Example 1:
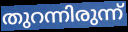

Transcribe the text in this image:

തുറന്നിരുന്ന്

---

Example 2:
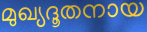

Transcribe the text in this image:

മുഖ്യദൂതനായ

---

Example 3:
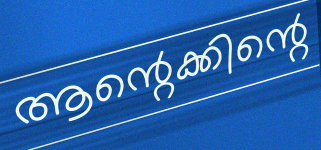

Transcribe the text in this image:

ആന്റെക്കിന്റെ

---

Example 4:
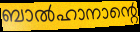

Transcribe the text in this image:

ബാൽഹാനാന്റെ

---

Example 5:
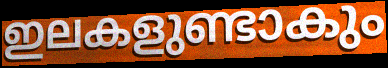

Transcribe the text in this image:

ഇലകളുണ്ടാകും